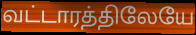
வட்டாரத்திலேயே